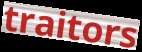
traitors